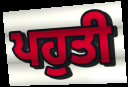
ਪਹੁਤੀ